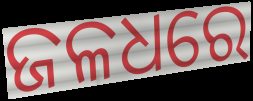
ଜଳଧରେ